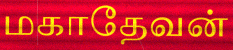
மகாதேவன்